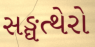
સઙ્ઘત્થેરો